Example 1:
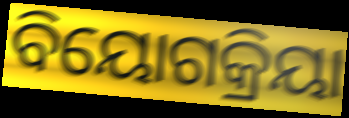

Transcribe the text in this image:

ବିୟୋଗକ୍ରିୟା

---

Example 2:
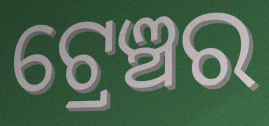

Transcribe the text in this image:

ଟ୍ରେଞ୍ଚର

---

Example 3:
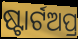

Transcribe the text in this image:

ଷ୍ଟାର୍ଟଅପ୍ର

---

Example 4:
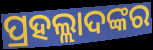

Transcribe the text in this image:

ପ୍ରହଲ୍ଲାଦଙ୍କର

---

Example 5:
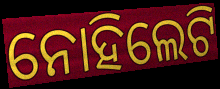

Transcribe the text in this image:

ନୋହିଲେଟି